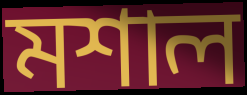
মশাল